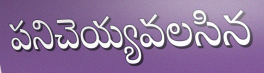
పనిచెయ్యవలసిన